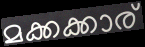
മക്കക്കാര്